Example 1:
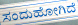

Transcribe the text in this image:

ಸಂದುಹೋಗಿದೆ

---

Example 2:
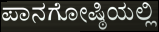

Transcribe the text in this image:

ಪಾನಗೋಷ್ಠಿಯಲ್ಲಿ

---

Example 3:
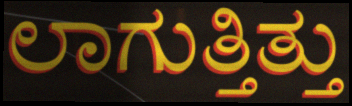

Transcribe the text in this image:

ಲಾಗುತ್ತಿತ್ತು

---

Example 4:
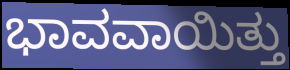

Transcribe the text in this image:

ಭಾವವಾಯಿತ್ತು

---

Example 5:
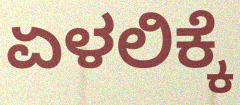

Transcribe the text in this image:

ಏಳಲಿಕ್ಕೆ